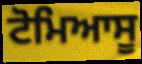
ਟੋਮਿਆਸੂ